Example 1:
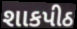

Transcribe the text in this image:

શાકપીઠ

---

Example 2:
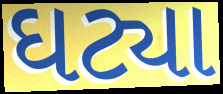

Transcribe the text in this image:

ઘટ્યા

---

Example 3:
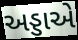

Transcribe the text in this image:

અડ્ડાએ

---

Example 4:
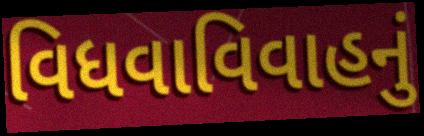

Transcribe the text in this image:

વિધવાવિવાહનું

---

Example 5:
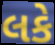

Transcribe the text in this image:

લકે